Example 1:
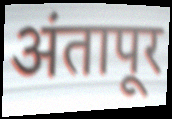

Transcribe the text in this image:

अंतापूर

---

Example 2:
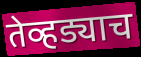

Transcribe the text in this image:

तेव्हड्याच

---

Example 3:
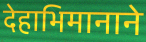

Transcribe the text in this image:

देहाभिमानाने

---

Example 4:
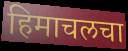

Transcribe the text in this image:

हिमाचलचा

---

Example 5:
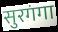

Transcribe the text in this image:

सुरगंगा